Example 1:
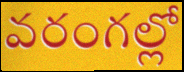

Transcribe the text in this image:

వరంగల్లో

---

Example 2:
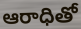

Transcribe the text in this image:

ఆరాధితో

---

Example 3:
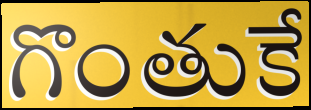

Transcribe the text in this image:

గొంతుకే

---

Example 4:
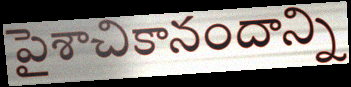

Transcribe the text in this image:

పైశాచికానందాన్ని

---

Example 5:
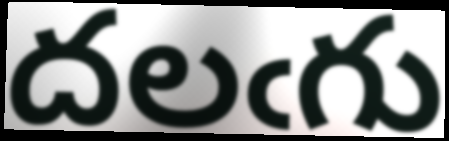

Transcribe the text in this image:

దలఁగు